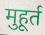
मुहूर्त